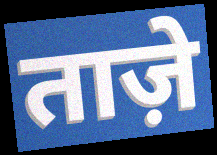
ताज़े